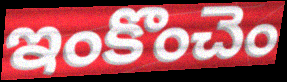
ఇంకొంచెం